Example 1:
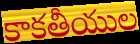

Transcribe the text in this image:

కాకతీయుల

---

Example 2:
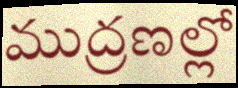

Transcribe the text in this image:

ముద్రణల్లో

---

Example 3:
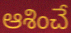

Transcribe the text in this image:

ఆశించే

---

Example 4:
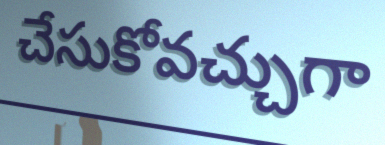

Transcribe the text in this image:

చేసుకోవచ్చుగా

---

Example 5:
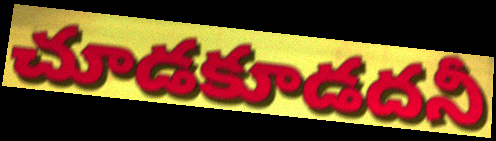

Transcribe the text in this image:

చూడకూడదనీ